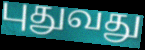
புதுவது